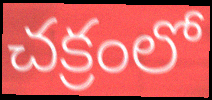
చక్రంలో